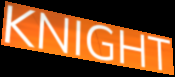
KNIGHT